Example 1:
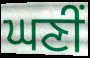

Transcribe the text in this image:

ਘਣੀਂ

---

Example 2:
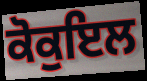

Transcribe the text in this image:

ਕੋਕੁਇਲ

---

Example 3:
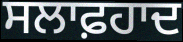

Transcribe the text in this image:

ਸਲਾਫ਼ਹਾਦ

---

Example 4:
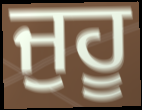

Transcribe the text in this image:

ਜੁਹੂ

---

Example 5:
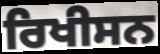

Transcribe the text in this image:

ਰਿਖੀਸਨ